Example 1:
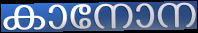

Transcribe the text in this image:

കാനോന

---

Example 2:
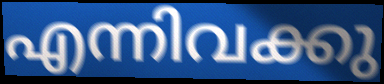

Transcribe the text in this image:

എന്നിവക്കു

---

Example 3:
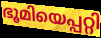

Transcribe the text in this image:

ഭൂമിയെപ്പറ്റി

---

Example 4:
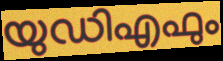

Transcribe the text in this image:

യുഡിഎഫും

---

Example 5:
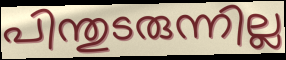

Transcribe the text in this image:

പിന്തുടരുന്നില്ല